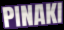
PINAKI